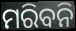
ମରିବନି